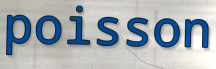
poisson